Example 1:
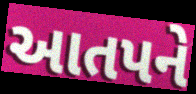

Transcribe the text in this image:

આતપને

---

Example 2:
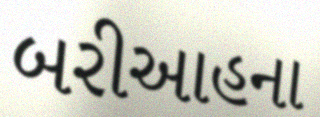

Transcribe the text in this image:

બરીઆહના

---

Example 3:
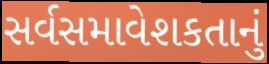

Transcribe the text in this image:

સર્વસમાવેશકતાનું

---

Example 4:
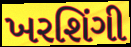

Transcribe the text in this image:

ખરશિંગી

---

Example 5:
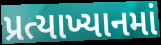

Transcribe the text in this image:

પ્રત્યાખ્યાનમાં